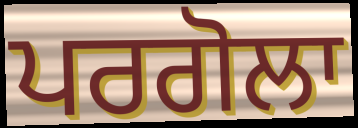
ਪਰਗੋਲਾ